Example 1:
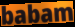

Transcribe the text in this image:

babam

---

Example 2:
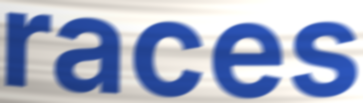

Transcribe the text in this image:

races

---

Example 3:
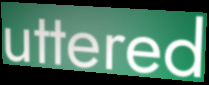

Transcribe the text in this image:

uttered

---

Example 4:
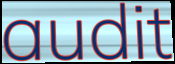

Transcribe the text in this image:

audit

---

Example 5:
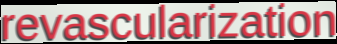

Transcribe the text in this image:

revascularization